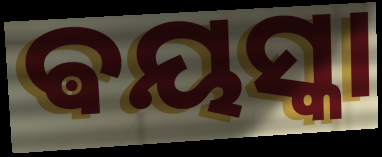
ଵୟସ୍କା